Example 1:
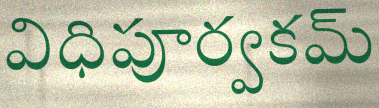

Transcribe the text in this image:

విధిపూర్వకమ్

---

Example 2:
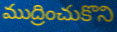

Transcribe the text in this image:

ముద్రించుకొని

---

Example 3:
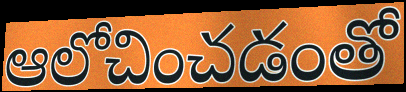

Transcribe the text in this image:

ఆలోచించడంతో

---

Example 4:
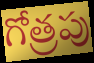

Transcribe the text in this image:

గోత్రపు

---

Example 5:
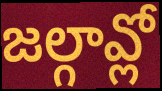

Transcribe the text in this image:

జల్గావ్లో